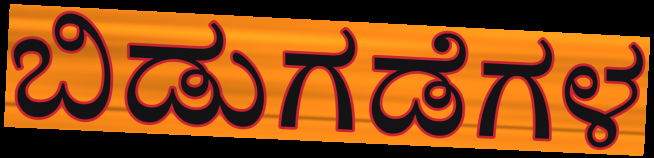
ಬಿಡುಗಡೆಗಳ